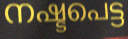
നഷ്ടപെട്ട